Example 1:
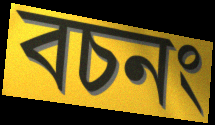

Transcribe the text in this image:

বচনং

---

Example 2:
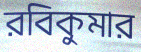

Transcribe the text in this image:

রবিকুমার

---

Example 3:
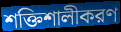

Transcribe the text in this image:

শক্তিশালীকরণ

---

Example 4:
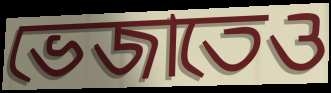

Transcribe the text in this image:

ভেজাতেও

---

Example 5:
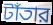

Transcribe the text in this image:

টাঁতার